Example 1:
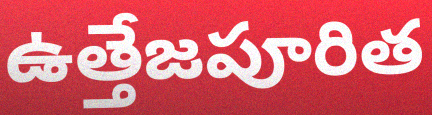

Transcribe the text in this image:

ఉత్తేజపూరిత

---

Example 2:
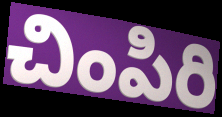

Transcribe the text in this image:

చింపిరి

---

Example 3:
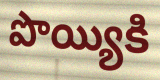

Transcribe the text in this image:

పొయ్యికి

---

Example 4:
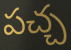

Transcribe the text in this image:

పచ్చ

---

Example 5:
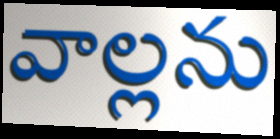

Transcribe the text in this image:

వాల్లను